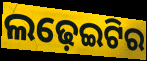
ଲଢ଼େଇଟିର